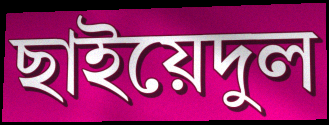
ছাইয়েদুল